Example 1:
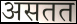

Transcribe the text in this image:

असतत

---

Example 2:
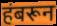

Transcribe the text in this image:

हंबरून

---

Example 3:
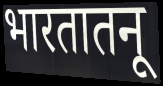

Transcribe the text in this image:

भारतातनू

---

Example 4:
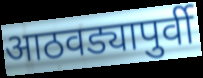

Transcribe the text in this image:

आठवड्यापुर्वी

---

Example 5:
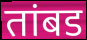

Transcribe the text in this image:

तांबड